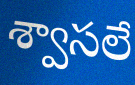
శ్వాసలే